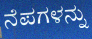
ನೆಪಗಳನ್ನು